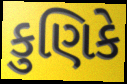
કુણિકે